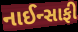
નાઈન્સાફી